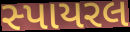
સ્પાયરલ